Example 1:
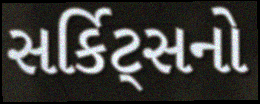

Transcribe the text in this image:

સર્કિટ્સનો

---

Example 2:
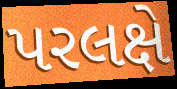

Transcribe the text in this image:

પરલક્ષે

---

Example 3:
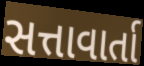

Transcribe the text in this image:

સત્તાવાર્તા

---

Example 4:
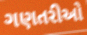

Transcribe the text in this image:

ગણતરીઓ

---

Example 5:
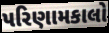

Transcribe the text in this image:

પરિણામકાલો